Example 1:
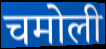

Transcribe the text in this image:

चमोली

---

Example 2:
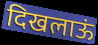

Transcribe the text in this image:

दिखलाऊं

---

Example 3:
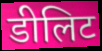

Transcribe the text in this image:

डीलिट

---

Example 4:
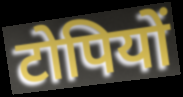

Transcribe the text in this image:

टोपियों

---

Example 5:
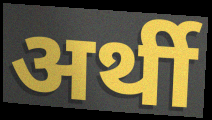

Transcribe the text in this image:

अर्थी